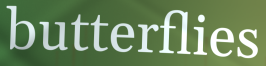
butterflies